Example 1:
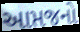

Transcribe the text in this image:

આપ્તજનો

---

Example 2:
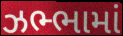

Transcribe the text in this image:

ઝભ્ભામાં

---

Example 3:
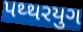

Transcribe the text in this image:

પથ્થરયુગ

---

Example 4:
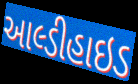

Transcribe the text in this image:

આલ્ડીહાઇડ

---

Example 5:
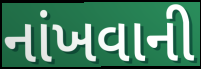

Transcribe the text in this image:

નાંખવાની